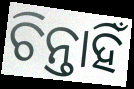
ଚିନ୍ତାହିଁ